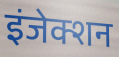
इंजेक्शन